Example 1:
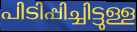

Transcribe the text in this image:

പിടിപ്പിച്ചിട്ടുള്ള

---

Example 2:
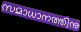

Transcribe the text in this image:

സമാധാനത്തിനു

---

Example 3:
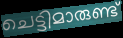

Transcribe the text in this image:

ചെട്ടിമാരുണ്ട്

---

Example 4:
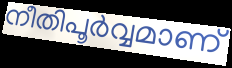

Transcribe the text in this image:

നീതിപൂർവ്വമാണ്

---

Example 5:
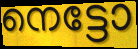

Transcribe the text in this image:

നെട്ടോ